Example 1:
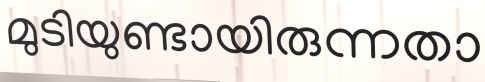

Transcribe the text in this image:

മുടിയുണ്ടായിരുന്നതാ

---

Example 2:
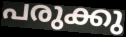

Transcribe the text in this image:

പരുക്കു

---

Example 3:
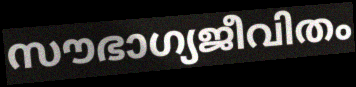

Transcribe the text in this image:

സൗഭാഗ്യജീവിതം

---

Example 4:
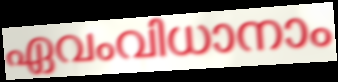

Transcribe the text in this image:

ഏവംവിധാനാം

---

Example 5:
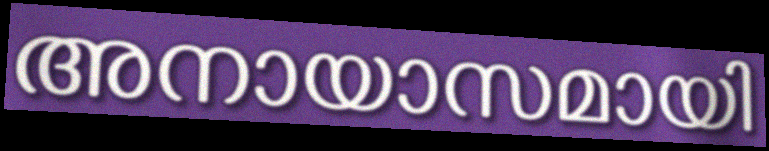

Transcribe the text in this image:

അനായാസമായി